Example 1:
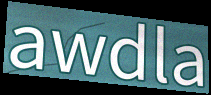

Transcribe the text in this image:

awdla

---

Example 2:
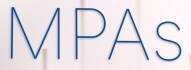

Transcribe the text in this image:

MPAs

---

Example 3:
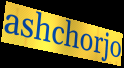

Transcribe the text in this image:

ashchorjo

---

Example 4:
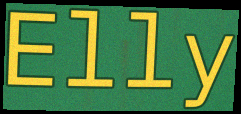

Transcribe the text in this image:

Elly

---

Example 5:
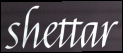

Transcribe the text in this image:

shettar